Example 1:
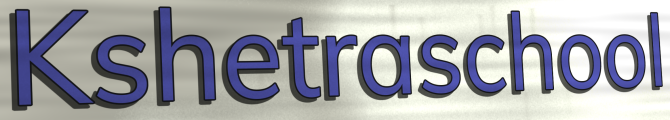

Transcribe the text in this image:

Kshetraschool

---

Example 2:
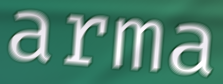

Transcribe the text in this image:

arma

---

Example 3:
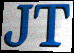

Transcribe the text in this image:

JT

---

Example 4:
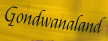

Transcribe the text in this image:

Gondwanaland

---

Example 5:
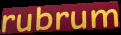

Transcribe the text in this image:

rubrum